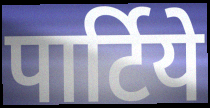
पार्टिये